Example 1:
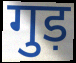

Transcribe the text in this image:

गुड़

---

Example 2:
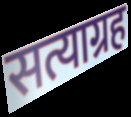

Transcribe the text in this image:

सत्याग्रह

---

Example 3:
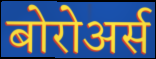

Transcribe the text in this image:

बोरोअर्स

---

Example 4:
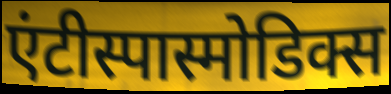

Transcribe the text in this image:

एंटीस्पास्मोडिक्स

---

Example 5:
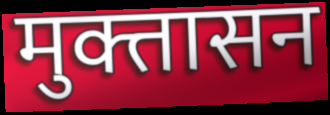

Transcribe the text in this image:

मुक्तासन